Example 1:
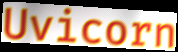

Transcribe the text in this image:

Uvicorn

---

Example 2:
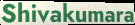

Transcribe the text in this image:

Shivakumara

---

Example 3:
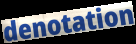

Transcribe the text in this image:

denotation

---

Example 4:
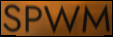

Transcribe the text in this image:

SPWM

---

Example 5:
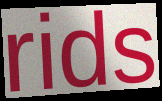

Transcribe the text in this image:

rids